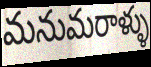
మనుమరాళ్ళు